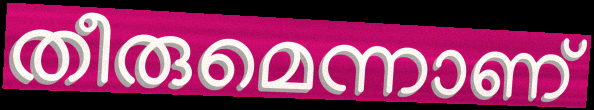
തീരുമെന്നാണ്